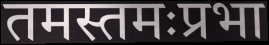
तमस्तमःप्रभा